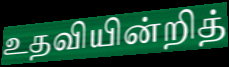
உதவியின்றித்